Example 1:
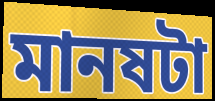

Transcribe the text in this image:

মানষটা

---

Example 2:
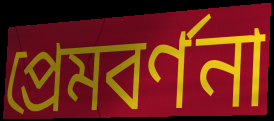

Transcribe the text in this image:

প্রেমবর্ণনা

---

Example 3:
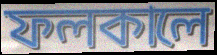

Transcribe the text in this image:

ফলকালে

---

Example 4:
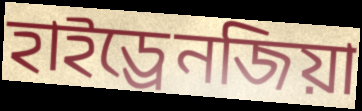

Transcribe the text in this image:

হাইড্রেনজিয়া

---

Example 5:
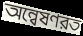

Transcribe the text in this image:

অন্বেষণরত